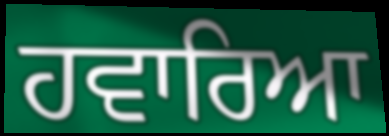
ਹਵਾਰਿਆ